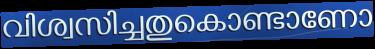
വിശ്വസിച്ചതുകൊണ്ടാണോ